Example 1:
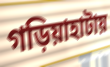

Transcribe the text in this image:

গড়িয়াহাটায়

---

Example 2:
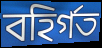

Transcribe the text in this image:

বহির্গত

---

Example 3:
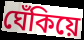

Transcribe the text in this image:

ঘেঁকিয়ে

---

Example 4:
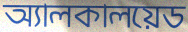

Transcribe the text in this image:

অ্যালকালয়েড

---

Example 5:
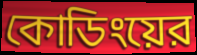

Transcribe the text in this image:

কোডিংয়ের